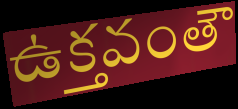
ఉక్తవంతౌ